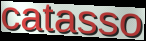
catasso